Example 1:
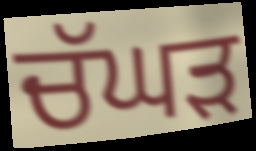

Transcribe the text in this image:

ਚੱਘੜ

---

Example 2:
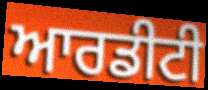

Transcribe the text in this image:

ਆਰਡੀਟੀ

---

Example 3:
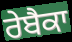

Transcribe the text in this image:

ਰੇਬੈਕਾ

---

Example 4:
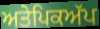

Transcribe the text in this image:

ਅਤੇਪਿਕਅੱਪ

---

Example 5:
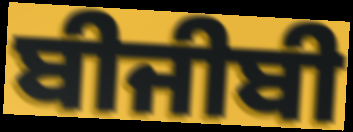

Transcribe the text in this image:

ਬੀਜੀਬੀ